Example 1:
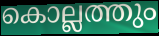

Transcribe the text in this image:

കൊല്ലത്തും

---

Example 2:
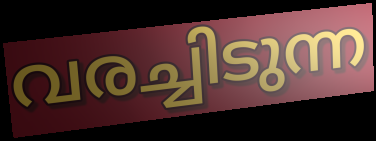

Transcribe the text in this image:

വരച്ചിടുന്ന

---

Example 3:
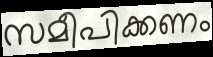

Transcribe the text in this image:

സമീപിക്കണം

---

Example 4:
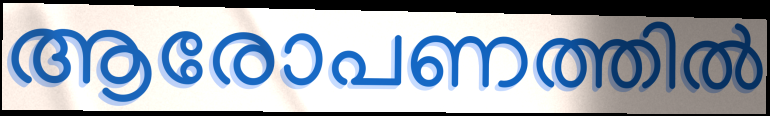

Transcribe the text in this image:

ആരോപണത്തിൽ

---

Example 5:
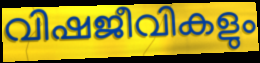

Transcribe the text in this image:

വിഷജീവികളും